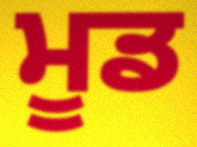
ਮੂਡ